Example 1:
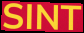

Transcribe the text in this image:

SINT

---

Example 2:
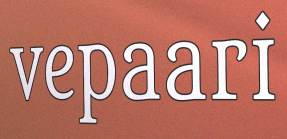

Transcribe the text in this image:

vepaari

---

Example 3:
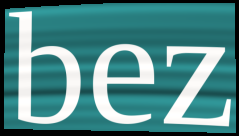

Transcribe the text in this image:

bez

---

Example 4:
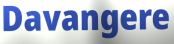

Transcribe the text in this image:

Davangere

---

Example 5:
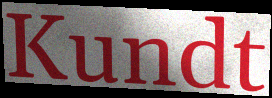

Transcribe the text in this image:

Kundt